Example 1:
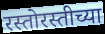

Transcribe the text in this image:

रस्तोरस्तीच्या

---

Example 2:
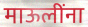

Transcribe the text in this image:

माऊलींना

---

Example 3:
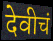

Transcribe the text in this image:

देवीचं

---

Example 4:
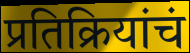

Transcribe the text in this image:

प्रतिक्रियांचं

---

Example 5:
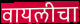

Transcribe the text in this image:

वायलीचा